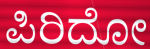
ಪಿರಿದೋ